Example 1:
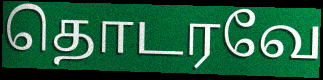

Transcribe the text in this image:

தொடரவே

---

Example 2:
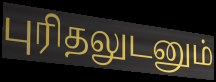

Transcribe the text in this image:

புரிதலுடனும்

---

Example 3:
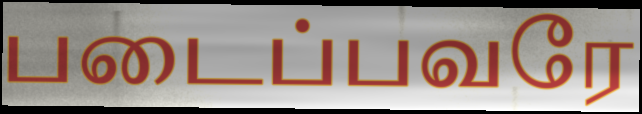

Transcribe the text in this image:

படைப்பவரே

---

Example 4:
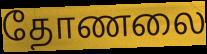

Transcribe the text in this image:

தோணலை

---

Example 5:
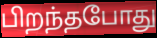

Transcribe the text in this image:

பிறந்தபோது